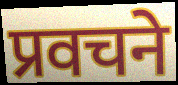
प्रवचने